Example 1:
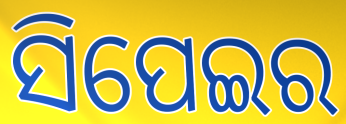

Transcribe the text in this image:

ସିପେଇର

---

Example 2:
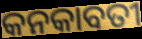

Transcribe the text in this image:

କନକାବତୀ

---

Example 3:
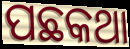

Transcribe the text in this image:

ପଛକଥା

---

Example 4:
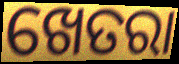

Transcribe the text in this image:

ଖେତରା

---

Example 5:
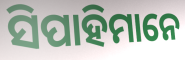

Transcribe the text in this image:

ସିପାହିମାନେ